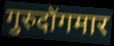
गुरुदोंगमार